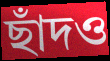
ছাঁদও